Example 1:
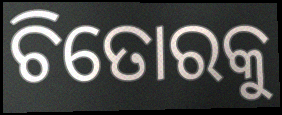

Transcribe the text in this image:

ଚିତୋରକୁ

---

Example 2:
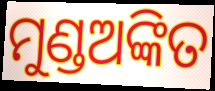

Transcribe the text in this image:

ମୁଣ୍ଡଅଙ୍କିତ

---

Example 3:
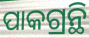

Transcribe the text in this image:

ପାକଗ୍ରନ୍ଥି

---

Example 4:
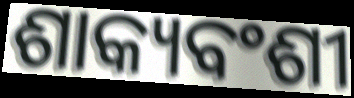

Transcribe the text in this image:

ଶାକ୍ୟବଂଶୀ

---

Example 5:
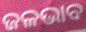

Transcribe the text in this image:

ଜଳଭାବ